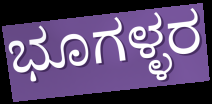
ಭೂಗಳ್ಳರ